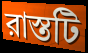
রাস্তটি